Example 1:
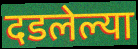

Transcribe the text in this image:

दडलेल्या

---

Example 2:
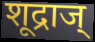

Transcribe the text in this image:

शूद्राज्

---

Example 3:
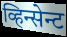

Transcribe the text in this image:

व्हिन्सेन्ट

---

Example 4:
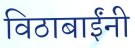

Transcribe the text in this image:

विठाबाईंनी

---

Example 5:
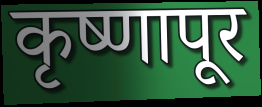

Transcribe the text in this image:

कृष्णापूर